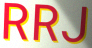
RRJ